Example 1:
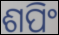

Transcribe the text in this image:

ଶପିଂ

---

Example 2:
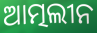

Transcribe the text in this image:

ଆତ୍ମଲୀନ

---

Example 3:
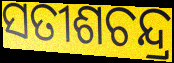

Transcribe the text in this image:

ସତୀଶଚନ୍ଦ୍ର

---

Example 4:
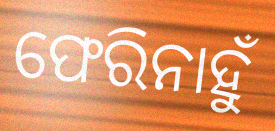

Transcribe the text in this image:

ଫେରିନାହୁଁ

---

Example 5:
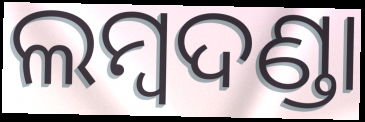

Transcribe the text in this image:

ଲମ୍ୱଦଣ୍ଡା